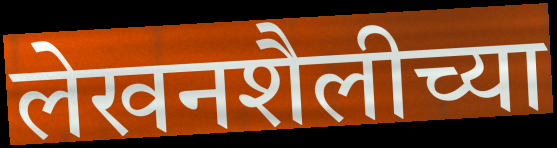
लेखनशैलीच्या